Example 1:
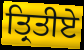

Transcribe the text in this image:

ਤ੍ਰਿਤੀਏ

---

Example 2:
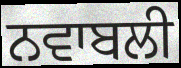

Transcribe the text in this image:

ਨਵਾਬਲੀ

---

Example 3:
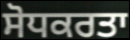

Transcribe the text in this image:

ਸੋਧਕਰਤਾ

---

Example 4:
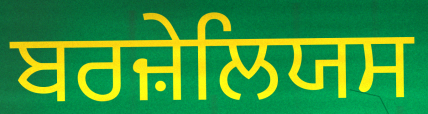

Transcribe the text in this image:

ਬਰਜ਼ੇਲਿਯਸ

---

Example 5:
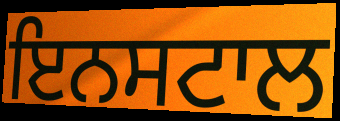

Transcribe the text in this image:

ਇਨਸਟਾਲ